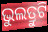
ଭୁଲତ୍ରୁଟି